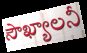
సౌఖ్యాలనీ